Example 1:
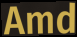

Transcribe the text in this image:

Amd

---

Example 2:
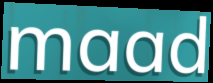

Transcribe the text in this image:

maad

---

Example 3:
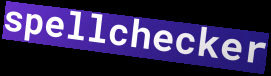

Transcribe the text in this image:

spellchecker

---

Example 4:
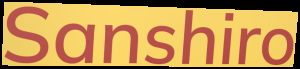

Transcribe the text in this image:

Sanshiro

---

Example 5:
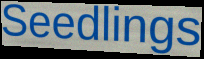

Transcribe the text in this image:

Seedlings